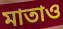
মাতাও